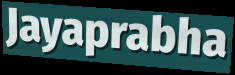
Jayaprabha